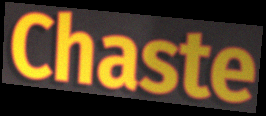
Chaste